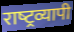
राष्‍ट्रव्‍यापी